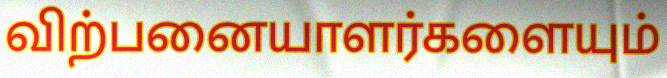
விற்பனையாளர்களையும்